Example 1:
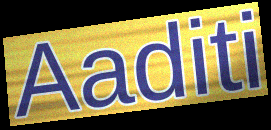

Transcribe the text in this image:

Aaditi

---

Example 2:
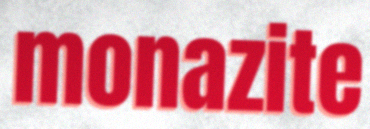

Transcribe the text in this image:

monazite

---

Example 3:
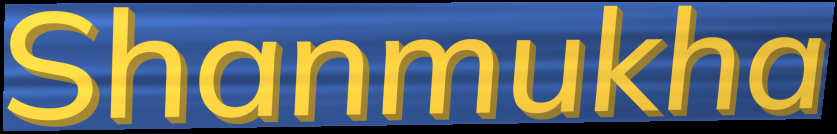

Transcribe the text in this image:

Shanmukha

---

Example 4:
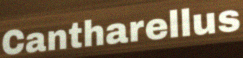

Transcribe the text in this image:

Cantharellus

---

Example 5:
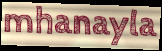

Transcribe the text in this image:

mhanayla